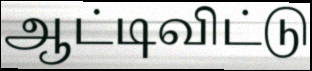
ஆட்டிவிட்டு